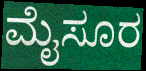
ಮೈಸೂರ